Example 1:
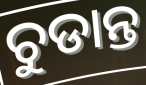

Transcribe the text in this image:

ଚୁଡାନ୍ତ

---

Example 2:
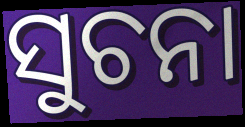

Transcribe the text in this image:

ସୁଚନା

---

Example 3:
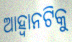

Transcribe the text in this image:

ଆହ୍ଵାନଟିକୁ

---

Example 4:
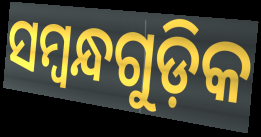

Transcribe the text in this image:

ସମ୍ବନ୍ଧଗୁଡ଼ିକ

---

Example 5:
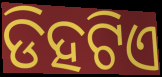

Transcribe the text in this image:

ଡିହଟିଏ